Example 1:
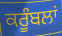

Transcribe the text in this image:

ਕਰੂੰਬਲਾਂ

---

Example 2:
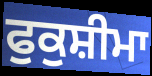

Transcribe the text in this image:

ਫੁਕੁਸ਼ੀਮਾ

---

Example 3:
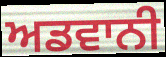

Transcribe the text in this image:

ਅਡਵਾਨੀ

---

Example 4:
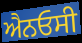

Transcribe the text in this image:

ਐਨਓਸੀ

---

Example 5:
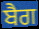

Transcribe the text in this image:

ਬੈਗ